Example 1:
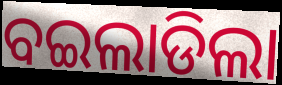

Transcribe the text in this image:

ବଇଲାଡିଲା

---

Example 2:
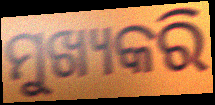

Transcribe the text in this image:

ମୁଖ୍ୟକରି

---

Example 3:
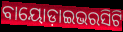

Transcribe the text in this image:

ବାୟୋଡ଼ାଇଭରସିଟି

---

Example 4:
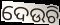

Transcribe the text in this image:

ଦେଉଚି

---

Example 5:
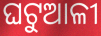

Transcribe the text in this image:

ଘଟୁଆଳୀ